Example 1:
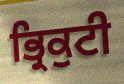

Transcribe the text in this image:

ਭ੍ਰਿਕੁਟੀ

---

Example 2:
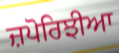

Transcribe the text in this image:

ਜ਼ਪੋਰਿਝੀਆ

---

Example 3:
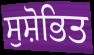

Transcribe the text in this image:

ਸੁਸ਼ੋਭਿਤ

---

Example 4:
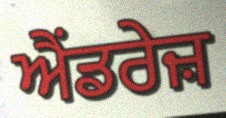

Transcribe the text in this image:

ਐਂਡਰੇਜ਼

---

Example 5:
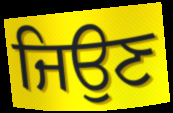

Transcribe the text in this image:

ਜਿਉਣ